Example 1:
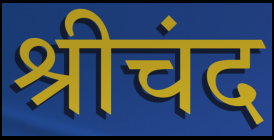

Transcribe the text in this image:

श्रीचंद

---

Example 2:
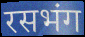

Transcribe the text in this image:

रसभंग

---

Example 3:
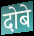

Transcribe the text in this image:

दोबे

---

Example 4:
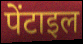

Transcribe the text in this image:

पेंटाइल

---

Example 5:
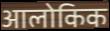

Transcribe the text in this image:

आलोकिक